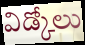
విడ్కోలు